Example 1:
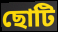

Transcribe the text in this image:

ছোটি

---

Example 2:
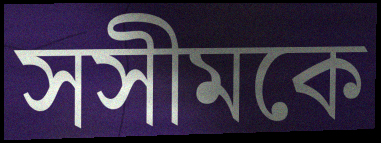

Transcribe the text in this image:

সসীমকে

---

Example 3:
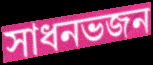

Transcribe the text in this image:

সাধনভজন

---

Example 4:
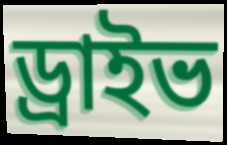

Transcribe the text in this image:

ড্রাইভ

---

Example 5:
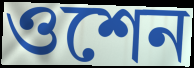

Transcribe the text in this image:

ওশেন